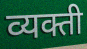
व्यक्ती